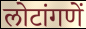
लोटांगणें